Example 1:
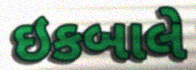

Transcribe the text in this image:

ઇકબાલે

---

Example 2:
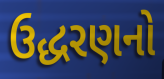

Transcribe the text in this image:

ઉદ્ધરણનો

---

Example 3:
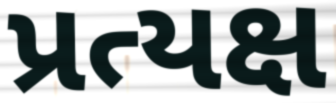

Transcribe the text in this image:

પ્રત્યક્ષ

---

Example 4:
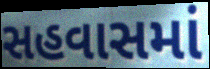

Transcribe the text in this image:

સહવાસમાં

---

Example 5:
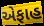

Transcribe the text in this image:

એફાહ